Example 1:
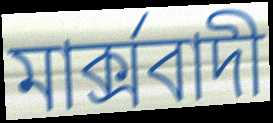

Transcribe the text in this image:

মার্ক্সবাদী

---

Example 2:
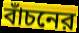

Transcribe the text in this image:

বাঁচনের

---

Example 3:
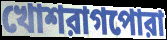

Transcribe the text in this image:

খোশরাগপোরা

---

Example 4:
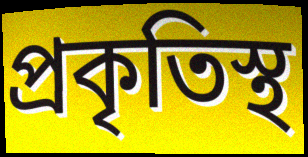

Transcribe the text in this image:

প্রকৃতিস্থ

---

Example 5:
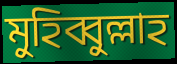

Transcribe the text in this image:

মুহিব্বুল্লাহ